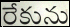
రేకును